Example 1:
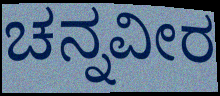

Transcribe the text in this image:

ಚನ್ನವೀರ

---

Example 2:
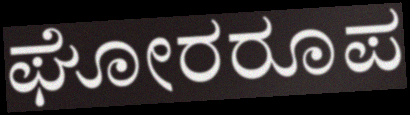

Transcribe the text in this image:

ಘೋರರೂಪ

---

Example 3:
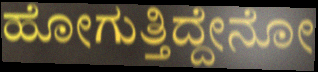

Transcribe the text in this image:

ಹೋಗುತ್ತಿದ್ದೇನೋ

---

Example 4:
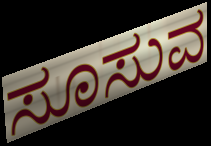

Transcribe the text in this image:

ಸೂಸುವ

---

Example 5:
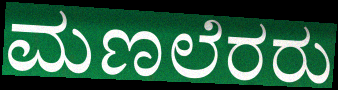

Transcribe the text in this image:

ಮಣಲೆರರು